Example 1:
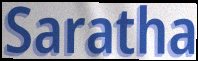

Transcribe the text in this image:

Saratha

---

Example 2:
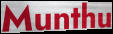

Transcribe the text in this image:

Munthu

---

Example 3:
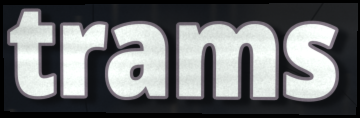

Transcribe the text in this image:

trams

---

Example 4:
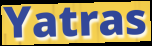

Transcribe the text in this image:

Yatras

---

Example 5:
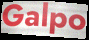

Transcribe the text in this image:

Galpo